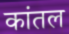
कांतल